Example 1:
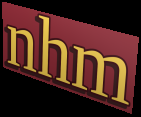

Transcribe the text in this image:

nhm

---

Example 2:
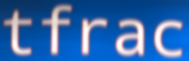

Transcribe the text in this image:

tfrac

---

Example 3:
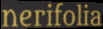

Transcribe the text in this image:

nerifolia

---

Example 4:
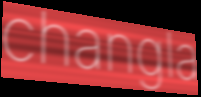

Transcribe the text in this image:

changla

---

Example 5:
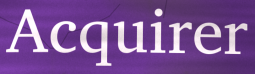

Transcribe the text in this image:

Acquirer